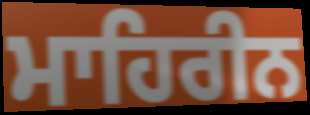
ਮਾਹਿਰੀਨ